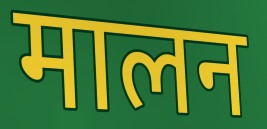
मालन